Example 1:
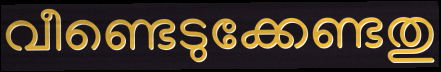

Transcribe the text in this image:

വീണ്ടെടുക്കേണ്ടതു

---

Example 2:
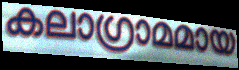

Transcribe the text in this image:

കലാഗ്രാമമായ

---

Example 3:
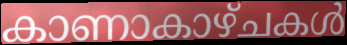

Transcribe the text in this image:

കാണാകാഴ്ചകൾ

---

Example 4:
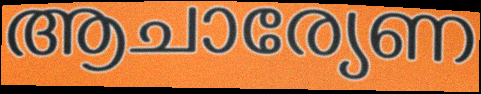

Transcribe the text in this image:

ആചാര്യേണ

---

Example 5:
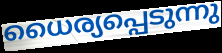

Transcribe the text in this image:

ധൈര്യപ്പെടുന്നു